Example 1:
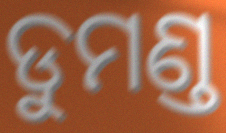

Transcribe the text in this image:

ଡୁମଣ୍ଡ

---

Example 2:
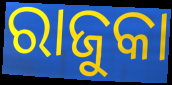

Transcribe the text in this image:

ରାଜୁକା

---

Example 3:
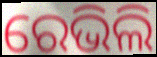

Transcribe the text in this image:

ରେଭିଲି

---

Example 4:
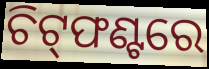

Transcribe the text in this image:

ଚିଟ୍‌ଫଣ୍ଟରେ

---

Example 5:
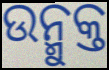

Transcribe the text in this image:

ଉନ୍ମୁକ୍ତ